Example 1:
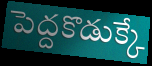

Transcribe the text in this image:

పెద్దకొడుక్కే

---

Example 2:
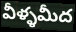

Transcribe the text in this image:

వీళ్ళమీద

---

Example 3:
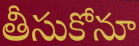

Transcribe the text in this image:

తీసుకోనూ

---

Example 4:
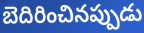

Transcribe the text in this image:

బెదిరించినప్పుడు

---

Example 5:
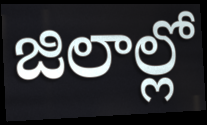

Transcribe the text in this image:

జిలాల్లో